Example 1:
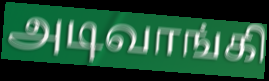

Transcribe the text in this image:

அடிவாங்கி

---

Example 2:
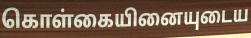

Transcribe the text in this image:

கொள்கையினையுடைய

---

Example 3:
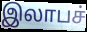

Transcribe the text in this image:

இலாபச்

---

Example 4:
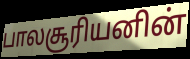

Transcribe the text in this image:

பாலசூரியனின்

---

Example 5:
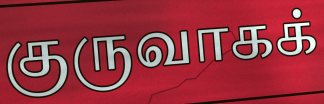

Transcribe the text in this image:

குருவாகக்